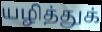
யழித்துக்